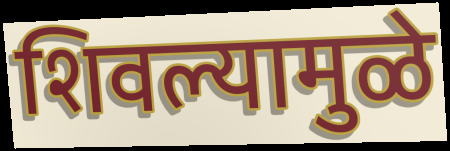
शिवल्यामुळे